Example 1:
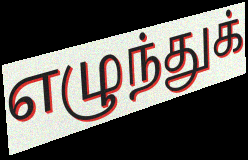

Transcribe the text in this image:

எழுந்துக்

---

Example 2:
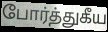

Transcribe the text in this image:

போர்த்துகீய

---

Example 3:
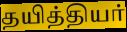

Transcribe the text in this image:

தயித்தியர்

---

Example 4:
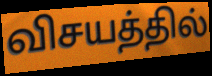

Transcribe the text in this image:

விசயத்தில்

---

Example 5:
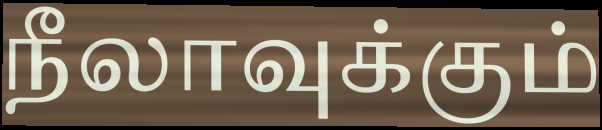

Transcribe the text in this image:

நீலாவுக்கும்